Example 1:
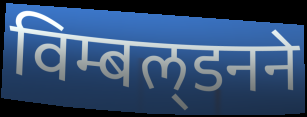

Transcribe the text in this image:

विम्बल्डनने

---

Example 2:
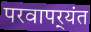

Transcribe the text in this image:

परवापर्यंत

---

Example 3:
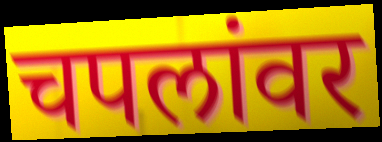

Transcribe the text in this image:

चपलांवर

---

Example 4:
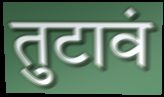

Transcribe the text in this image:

तुटावं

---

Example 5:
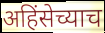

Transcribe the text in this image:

अहिंसेच्याच